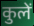
कुलें